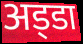
अड्‌डा